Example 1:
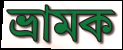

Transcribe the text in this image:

ভ্রামক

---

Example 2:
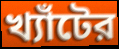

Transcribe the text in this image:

খ্যাঁটের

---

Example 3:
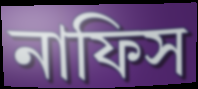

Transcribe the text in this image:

নাফিস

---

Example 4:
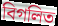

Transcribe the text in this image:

বিগলিত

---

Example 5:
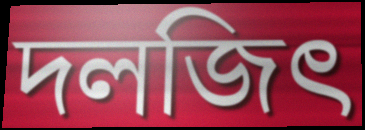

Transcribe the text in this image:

দলজিৎ